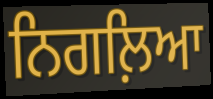
ਨਿਗਲ਼ਿਆ